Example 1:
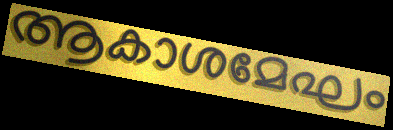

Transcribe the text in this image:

ആകാശമേഘം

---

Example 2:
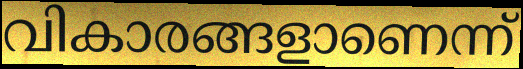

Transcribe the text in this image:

വികാരങ്ങളാണെന്ന്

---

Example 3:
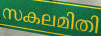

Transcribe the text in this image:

സകലമിതി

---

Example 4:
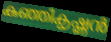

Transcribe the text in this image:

കുഞ്ഞികൃഷ്ണൻ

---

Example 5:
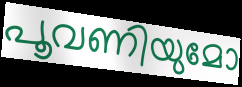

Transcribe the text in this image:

പൂവണിയുമോ